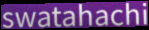
swatahachi